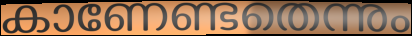
കാണേണ്ടതെന്നും